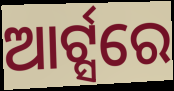
ଆର୍ଟ୍ସରେ